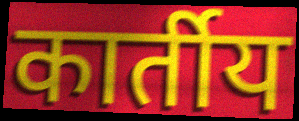
कार्तीय